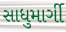
સાધુમાર્ગી